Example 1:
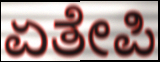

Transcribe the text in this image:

ಏತೇಪಿ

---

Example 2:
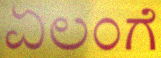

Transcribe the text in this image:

ಏಲಂಗೆ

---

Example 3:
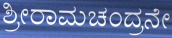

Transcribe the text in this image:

ಶ್ರೀರಾಮಚಂದ್ರನೇ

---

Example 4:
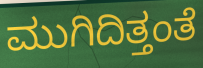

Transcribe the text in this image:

ಮುಗಿದಿತ್ತಂತೆ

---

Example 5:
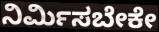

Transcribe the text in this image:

ನಿರ್ಮಿಸಬೇಕೇ